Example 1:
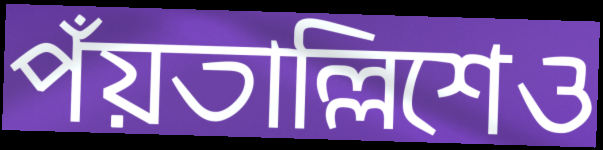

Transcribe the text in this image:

পঁয়তাল্লিশেও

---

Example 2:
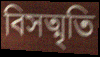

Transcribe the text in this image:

বিসত্মৃতি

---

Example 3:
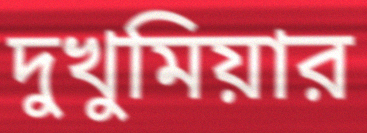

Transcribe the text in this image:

দুখুমিয়ার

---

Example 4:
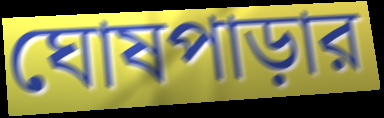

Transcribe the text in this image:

ঘোষপাড়ার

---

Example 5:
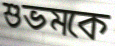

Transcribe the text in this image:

শুভমকে